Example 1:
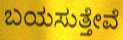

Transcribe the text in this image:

ಬಯಸುತ್ತೇವೆ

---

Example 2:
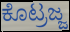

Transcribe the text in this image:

ಕೊಟ್ರಜ್ಜ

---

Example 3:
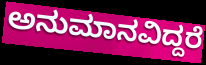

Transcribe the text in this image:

ಅನುಮಾನವಿದ್ದರೆ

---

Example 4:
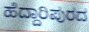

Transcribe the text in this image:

ಹೆದ್ದಾರಿಪುರದ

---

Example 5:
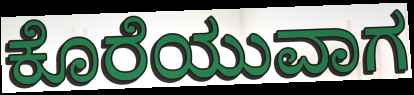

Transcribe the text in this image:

ಕೊರೆಯುವಾಗ